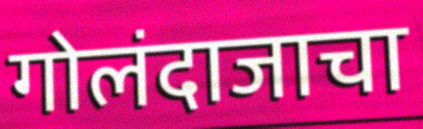
गोलंदाजाचा